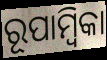
ରୂପାମ୍ବିକା